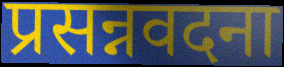
प्रसन्नवदना